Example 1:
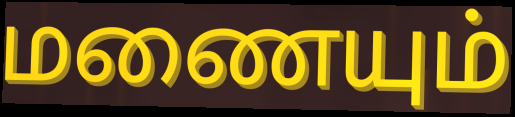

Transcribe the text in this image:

மணையும்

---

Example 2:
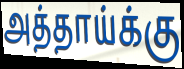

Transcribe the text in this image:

அத்தாய்க்கு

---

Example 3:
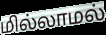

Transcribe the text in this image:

மில்லாமல்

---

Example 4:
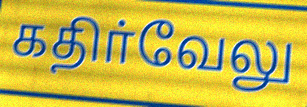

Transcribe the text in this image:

கதிர்வேலு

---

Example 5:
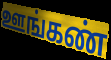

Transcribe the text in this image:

ஊங்கண்